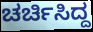
ಚರ್ಚಿಸಿದ್ದ